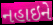
નહાઇને